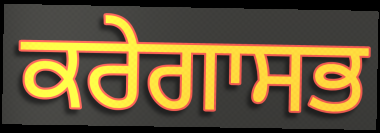
ਕਰੇਗਾਸਭ